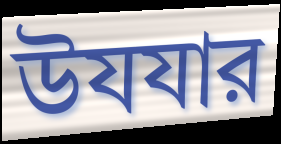
উযযার